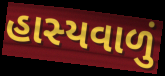
હાસ્યવાળું